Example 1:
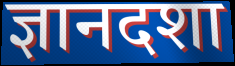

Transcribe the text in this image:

ज्ञानदशा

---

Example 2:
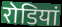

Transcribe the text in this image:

रोडियां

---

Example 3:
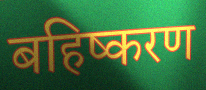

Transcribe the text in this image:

बहिष्करण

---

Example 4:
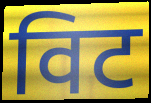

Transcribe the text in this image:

विट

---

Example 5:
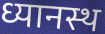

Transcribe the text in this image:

ध्यानस्थ